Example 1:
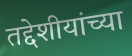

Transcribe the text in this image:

तद्देशीयांच्या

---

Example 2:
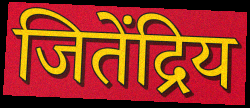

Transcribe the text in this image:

जितेंद्रिय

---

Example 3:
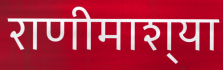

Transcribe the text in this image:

राणीमाश्या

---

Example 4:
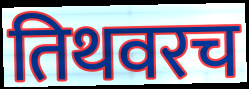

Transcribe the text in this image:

तिथवरच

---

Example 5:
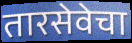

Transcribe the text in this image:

तारसेवेचा